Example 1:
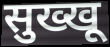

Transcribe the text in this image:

सुख्खू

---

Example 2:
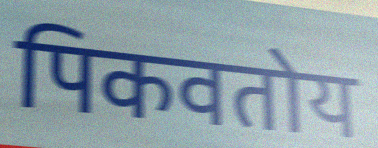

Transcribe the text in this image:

पिकवतोय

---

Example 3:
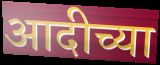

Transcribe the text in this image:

आदीच्या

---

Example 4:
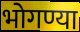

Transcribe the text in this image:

भोगण्या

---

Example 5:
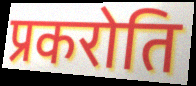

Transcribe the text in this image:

प्रकरोति